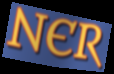
NER